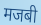
मजबी